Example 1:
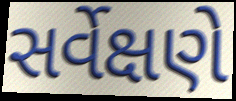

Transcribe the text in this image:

સર્વેક્ષણે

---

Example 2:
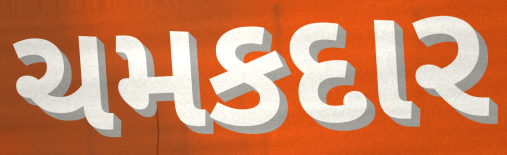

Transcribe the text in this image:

ચમકદાર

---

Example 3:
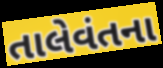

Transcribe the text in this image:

તાલેવંતના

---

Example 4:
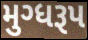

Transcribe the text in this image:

મુગ્ધરૂપ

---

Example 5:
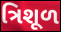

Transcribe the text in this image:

ત્રિશૂળ